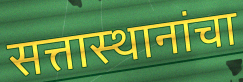
सत्तास्थानांचा